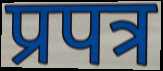
प्रपत्र